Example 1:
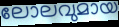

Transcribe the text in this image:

ലോലവുമായ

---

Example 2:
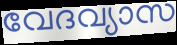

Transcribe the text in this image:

വേദവ്യാസ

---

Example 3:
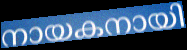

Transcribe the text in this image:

നായകനായി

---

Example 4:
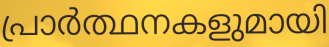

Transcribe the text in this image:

പ്രാർത്ഥനകളുമായി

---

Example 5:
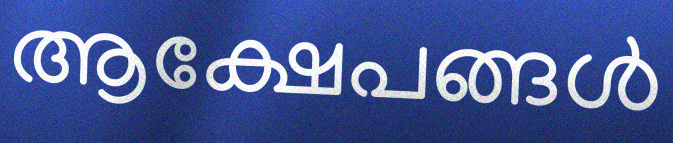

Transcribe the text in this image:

ആക്ഷേപങ്ങൾ